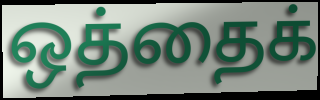
ஒத்தைக்